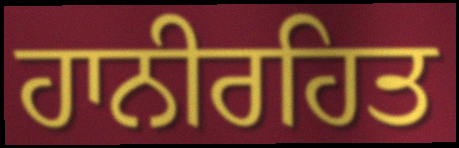
ਹਾਨੀਰਹਿਤ